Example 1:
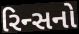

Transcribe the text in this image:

રિન્સનો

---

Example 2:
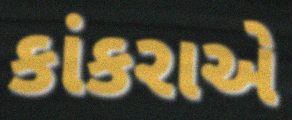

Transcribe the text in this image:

કાંકરાએ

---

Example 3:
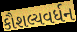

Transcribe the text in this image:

કૌશલ્યવર્ધન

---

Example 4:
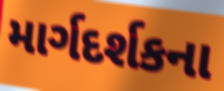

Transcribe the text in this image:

માર્ગદર્શકના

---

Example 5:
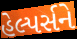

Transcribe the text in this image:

હેલ્પર્સને